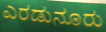
ಎರಡುನೂರು